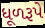
ધૂળરૂપે